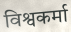
विश्वकर्मा